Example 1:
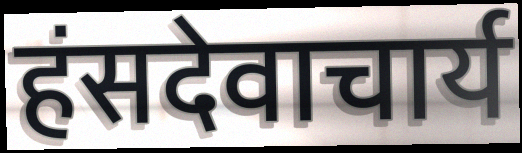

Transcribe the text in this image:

हंसदेवाचार्य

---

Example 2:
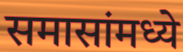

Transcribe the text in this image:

समासांमध्ये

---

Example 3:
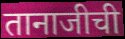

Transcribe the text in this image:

तानाजीची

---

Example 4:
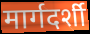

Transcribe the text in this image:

मार्गदर्शी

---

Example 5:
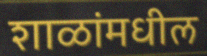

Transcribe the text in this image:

शाळांमधील